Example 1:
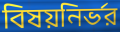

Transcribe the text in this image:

বিষয়নির্ভর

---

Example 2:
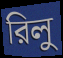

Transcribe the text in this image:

রিলু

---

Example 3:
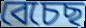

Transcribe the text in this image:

বেচেছ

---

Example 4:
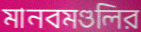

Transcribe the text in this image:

মানবমণ্ডলির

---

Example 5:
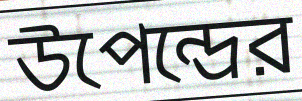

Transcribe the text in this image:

উপেন্দ্রের